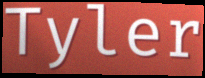
Tyler